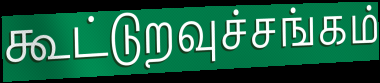
கூட்டுறவுச்சங்கம்